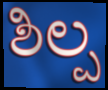
ಶಿಲ್ಪ